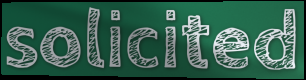
solicited